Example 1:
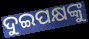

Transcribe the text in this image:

ଦୁଇପକ୍ଷଙ୍କୁ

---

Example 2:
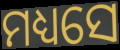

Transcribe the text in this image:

ମଧ୍ୟସେ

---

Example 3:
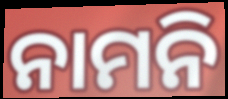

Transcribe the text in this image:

ନାମନି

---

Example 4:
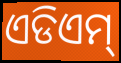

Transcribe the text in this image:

ଏଡିଏମ୍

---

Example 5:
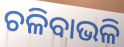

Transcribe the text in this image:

ଚଳିବାଭଳି